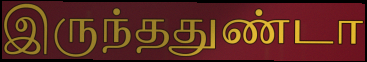
இருந்ததுண்டா